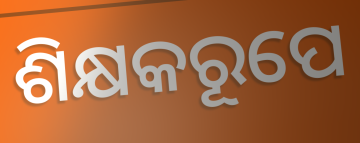
ଶିକ୍ଷକରୂପେ